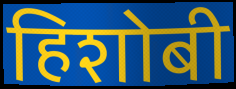
हिशोबी